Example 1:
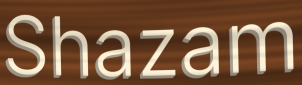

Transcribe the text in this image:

Shazam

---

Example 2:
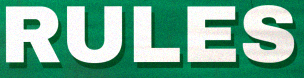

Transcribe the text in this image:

RULES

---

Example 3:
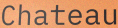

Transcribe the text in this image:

Chateau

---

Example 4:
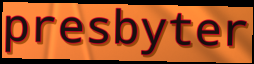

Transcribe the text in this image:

presbyter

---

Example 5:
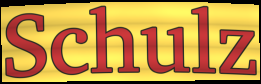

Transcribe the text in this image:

Schulz